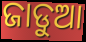
ଜାଡୁଆ